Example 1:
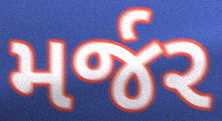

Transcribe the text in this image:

મર્જર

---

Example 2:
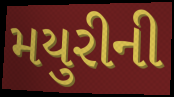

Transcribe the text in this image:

મયુરીની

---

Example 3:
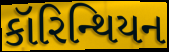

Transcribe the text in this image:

કૉરિન્થિયન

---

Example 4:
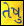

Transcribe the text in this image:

તેષુ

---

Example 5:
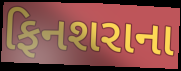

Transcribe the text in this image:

ફિનશરાના